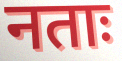
नताः